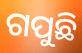
ଗପୁଛି